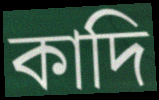
কাদি